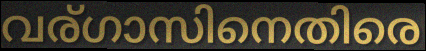
വര്ഗാസിനെതിരെ